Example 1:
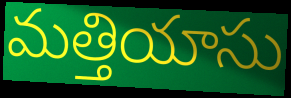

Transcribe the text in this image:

మత్తియాసు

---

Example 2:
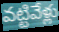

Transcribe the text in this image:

వట్టివేళ్లు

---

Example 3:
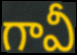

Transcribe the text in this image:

గావీ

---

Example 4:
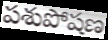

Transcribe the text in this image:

పశుపోషణ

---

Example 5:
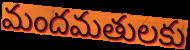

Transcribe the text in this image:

మందమతులకు